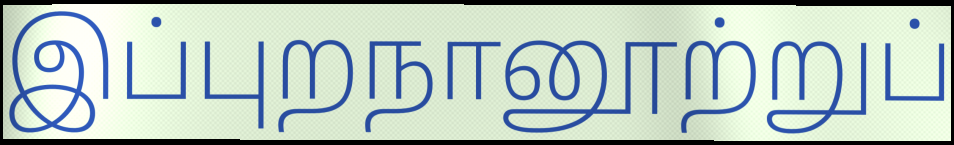
இப்புறநானூற்றுப்